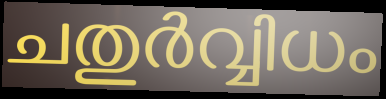
ചതുർവ്വിധം